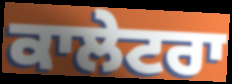
ਕਾਲੇਟਰਾ